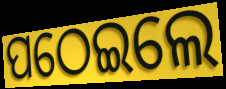
ପଠେଇଲେ